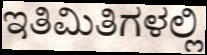
ಇತಿಮಿತಿಗಳಲ್ಲಿ